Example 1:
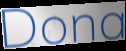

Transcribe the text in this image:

Dona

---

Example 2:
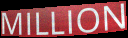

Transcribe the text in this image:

MILLION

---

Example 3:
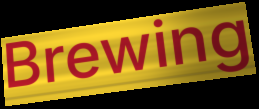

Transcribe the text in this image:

Brewing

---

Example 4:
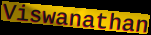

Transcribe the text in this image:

Viswanathan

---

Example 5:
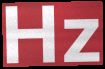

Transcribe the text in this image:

Hz